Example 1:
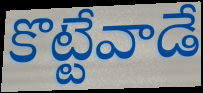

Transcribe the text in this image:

కొట్టేవాడే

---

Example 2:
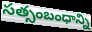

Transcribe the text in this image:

సత్సంబంధాన్ని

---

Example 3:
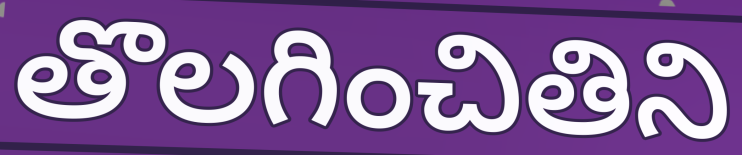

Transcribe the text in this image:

తొలగించితిని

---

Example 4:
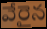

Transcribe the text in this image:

వేరైన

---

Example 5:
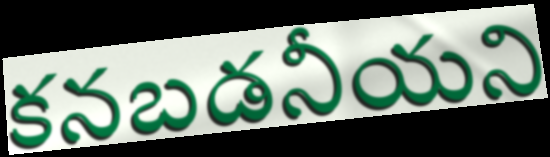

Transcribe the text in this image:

కనబడనీయని